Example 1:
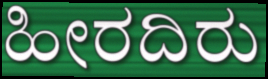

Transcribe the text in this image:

ಹೀರದಿರು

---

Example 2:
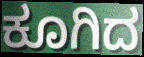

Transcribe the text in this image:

ಕೂಗಿದ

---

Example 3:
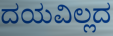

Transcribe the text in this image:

ದಯವಿಲ್ಲದ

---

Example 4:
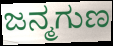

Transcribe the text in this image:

ಜನ್ಮಗುಣ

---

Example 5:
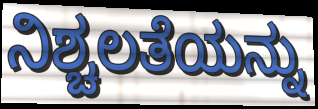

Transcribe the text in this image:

ನಿಶ್ಚಲತೆಯನ್ನು